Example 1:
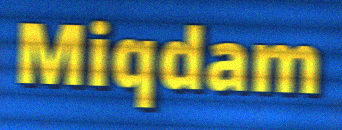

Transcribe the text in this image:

Miqdam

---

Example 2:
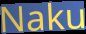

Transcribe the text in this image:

Naku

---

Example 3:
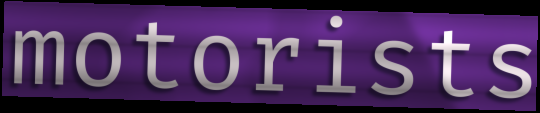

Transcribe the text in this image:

motorists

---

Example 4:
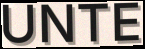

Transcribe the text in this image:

UNTE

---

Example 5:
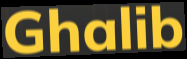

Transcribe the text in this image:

Ghalib